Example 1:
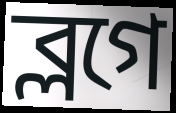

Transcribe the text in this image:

ব্লগে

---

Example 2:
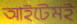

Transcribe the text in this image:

আইটেমই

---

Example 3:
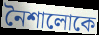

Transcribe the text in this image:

নৈশালোকে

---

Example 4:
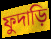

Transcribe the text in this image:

ফুদাড়ি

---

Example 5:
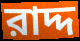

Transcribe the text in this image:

রাদ্দ